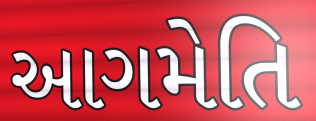
આગમેતિ